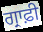
ਗ੍ਰਾਫ਼ੀ